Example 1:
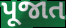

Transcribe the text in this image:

પૂજાત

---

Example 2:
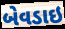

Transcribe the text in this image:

બેવડાઇ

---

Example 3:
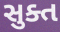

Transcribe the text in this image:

સુક્ત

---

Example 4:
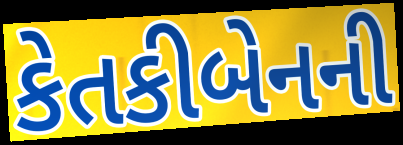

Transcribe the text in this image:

કેતકીબેનની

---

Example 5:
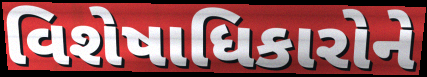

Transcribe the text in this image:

વિશેષાધિકારોને